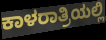
ಕಾಳರಾತ್ರಿಯಲ್ಲಿ